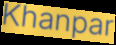
Khanpar